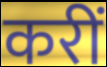
करीं